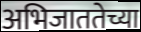
अभिजाततेच्या